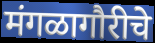
मंगळागौरीचे